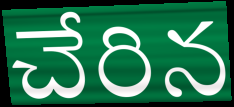
చేరిన